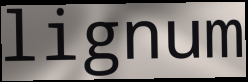
lignum